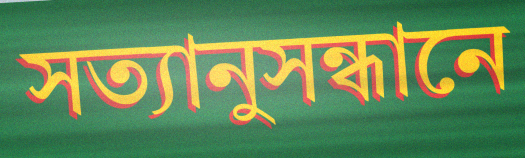
সত্যানুসন্ধানে